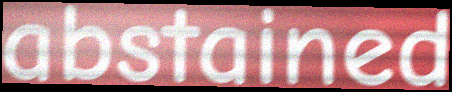
abstained